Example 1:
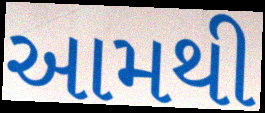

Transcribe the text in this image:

આમથી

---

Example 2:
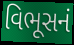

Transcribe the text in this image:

વિભૂસનં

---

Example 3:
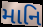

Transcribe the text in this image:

માનિ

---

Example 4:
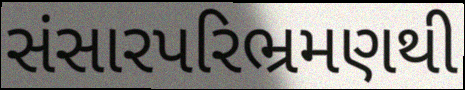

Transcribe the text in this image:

સંસારપરિભ્રમણથી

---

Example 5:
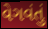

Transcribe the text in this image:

વેગવંતું